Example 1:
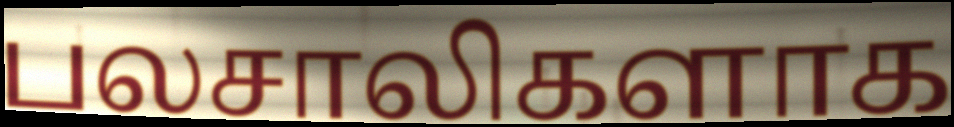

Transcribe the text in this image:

பலசாலிகளாக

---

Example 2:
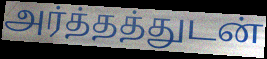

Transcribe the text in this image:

அர்த்தத்துடன்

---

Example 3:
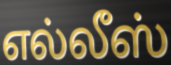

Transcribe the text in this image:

எல்லீஸ்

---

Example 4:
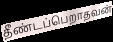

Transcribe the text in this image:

தீண்டப்பெறாதவன்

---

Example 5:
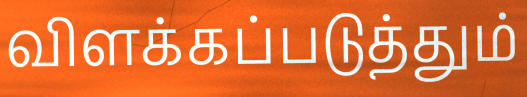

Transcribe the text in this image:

விளக்கப்படுத்தும்